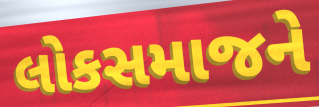
લોકસમાજને